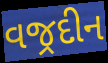
વજ્રદીન